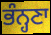
ਭੰਨ੍ਹਣਾ